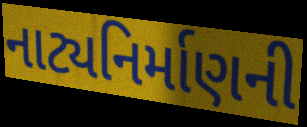
નાટ્યનિર્માણની